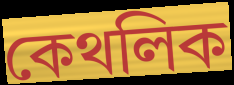
কেথলিক